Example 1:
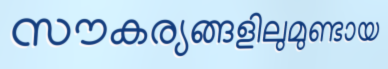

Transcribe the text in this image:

സൗകര്യങ്ങളിലുമുണ്ടായ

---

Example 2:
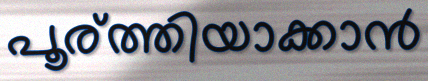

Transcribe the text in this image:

പൂര്ത്തിയാക്കാൻ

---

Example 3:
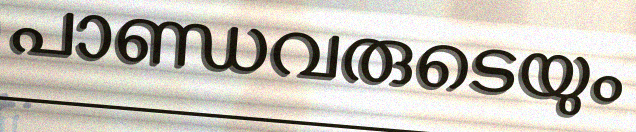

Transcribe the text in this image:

പാണ്ഡവരുടെയും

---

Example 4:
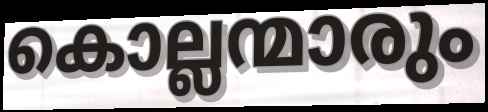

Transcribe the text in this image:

കൊല്ലന്മാരും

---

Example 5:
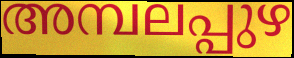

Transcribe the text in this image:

അമ്പലപ്പുഴ